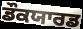
ਡੌਕਯਾਰਡ